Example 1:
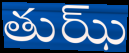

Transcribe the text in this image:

తుఝ్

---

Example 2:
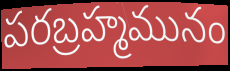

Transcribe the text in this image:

పరబ్రహ్మమునం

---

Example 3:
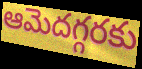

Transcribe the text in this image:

ఆమెదగ్గరకు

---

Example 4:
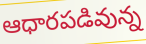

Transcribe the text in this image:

ఆధారపడివున్న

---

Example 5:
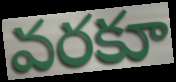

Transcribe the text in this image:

వరకూ